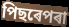
পিছৰেপৰা